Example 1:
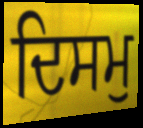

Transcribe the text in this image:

ਦਿਸਮੁ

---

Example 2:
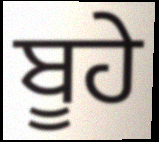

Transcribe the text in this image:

ਬੂਹੇ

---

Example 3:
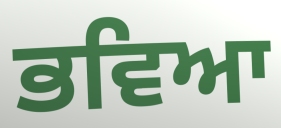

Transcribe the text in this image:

ਭਵਿਆ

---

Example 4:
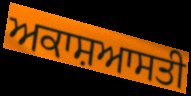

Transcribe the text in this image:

ਅਕਾਸ਼ਆਸਤੀ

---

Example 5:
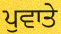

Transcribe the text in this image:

ਪੁਵਾਤੇ